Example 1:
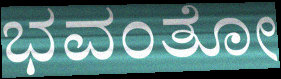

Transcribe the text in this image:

ಭವಂತೋ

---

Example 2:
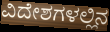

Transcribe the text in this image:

ವಿದೇಶಗಳಲ್ಲಿನ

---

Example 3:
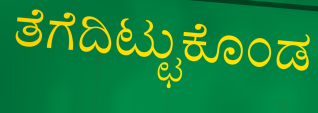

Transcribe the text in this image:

ತೆಗೆದಿಟ್ಟುಕೊಂಡ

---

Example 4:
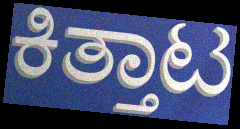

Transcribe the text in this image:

ಕಿತ್ತಾಟ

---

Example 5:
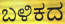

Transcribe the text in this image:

ಬಳಿಕದ